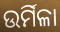
ଉର୍ମିଳା